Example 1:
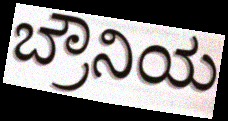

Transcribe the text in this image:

ಬ್ರೌನಿಯ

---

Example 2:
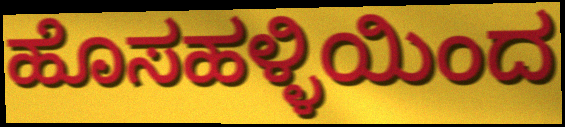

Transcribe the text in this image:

ಹೊಸಹಳ್ಳಿಯಿಂದ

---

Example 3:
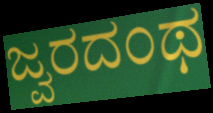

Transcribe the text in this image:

ಜ್ವರದಂಥ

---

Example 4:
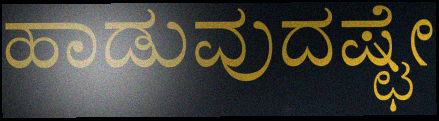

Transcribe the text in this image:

ಹಾಡುವುದಷ್ಟೇ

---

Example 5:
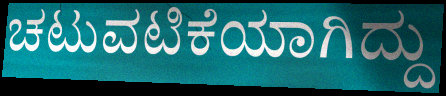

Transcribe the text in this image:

ಚಟುವಟಿಕೆಯಾಗಿದ್ದು